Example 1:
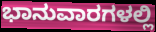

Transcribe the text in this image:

ಭಾನುವಾರಗಳಲ್ಲಿ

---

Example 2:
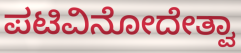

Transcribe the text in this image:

ಪಟಿವಿನೋದೇತ್ವಾ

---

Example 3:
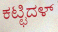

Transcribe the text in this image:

ಕಟ್ಟಿದಳ್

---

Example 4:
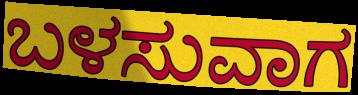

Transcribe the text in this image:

ಬಳಸುವಾಗ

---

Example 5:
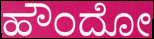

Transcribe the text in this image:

ಹೌಂದೋ